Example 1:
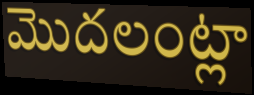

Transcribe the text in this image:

మొదలంట్లా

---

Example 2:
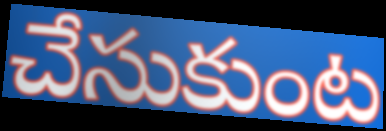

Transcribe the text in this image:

చేసుకుంట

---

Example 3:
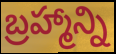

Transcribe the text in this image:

బ్రహ్మాన్ని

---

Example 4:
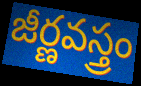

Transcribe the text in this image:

జీర్ణవస్త్రం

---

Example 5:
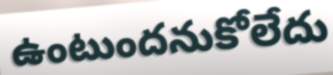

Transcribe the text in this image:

ఉంటుందనుకోలేదు